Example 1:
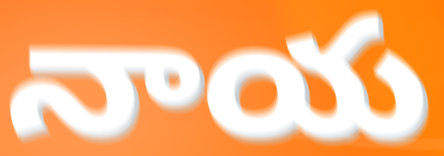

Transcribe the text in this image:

నాయ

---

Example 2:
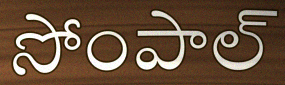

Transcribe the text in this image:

సోంపాల్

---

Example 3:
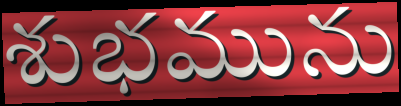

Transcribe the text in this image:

శుభమును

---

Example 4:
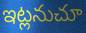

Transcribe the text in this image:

ఇట్లనుచూ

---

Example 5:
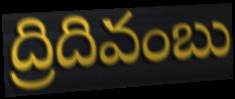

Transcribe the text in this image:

ద్రిదివంబు